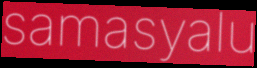
samasyalu